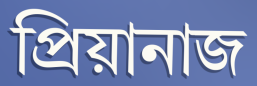
প্রিয়ানাজ